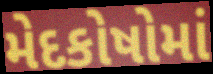
મેદકોષોમાં